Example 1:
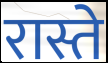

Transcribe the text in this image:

रास्ते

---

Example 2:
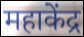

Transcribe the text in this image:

महाकेंद्र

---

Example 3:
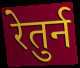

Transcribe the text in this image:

रेतुर्न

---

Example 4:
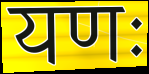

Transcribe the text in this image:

यणः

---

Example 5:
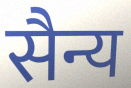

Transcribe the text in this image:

सैन्य